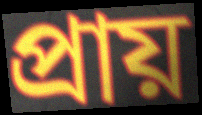
প্ৰায়